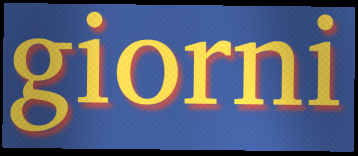
giorni